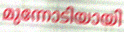
മുന്നോടിയായി